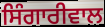
ਸਿੰਗਾਰੀਵਾਲ